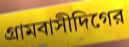
গ্রামবাসীদিগের